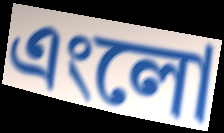
এংলো